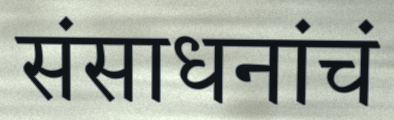
संसाधनांचं